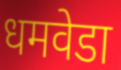
धमवेडा